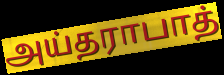
அய்தராபாத்